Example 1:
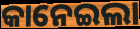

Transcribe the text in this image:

କାନେଇଲା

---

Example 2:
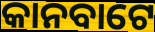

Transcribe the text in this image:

କାନବାଟେ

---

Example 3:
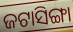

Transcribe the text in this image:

ଜଟାସିଙ୍ଗା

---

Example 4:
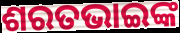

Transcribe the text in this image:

ଶରତଭାଇଙ୍କ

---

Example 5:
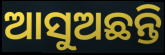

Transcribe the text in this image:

ଆସୁଅଛନ୍ତି